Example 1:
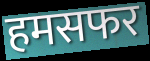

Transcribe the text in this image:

हमसफर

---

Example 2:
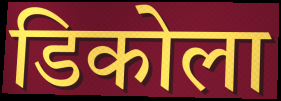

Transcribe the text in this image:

डिकोला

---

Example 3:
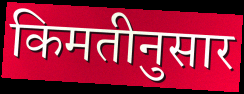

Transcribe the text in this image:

किमतीनुसार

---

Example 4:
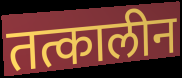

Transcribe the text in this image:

तत्कालीन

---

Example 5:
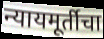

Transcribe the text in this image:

न्यायमूर्तीचा